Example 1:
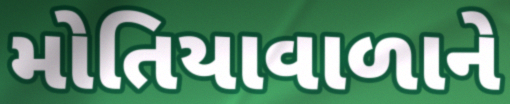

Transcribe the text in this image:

મોતિયાવાળાને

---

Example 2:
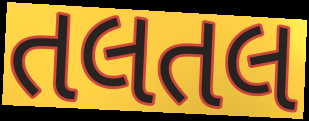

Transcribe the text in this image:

તલતલ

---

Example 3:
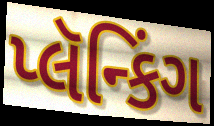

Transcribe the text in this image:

પ્લૅન્કિંગ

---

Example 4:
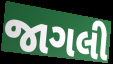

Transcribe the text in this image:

જાગલી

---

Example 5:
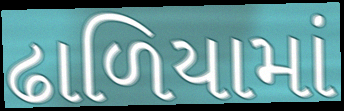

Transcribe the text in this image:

ઢાળિયામાં